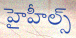
హైహీల్స్